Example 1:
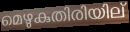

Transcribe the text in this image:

മെഴുകുതിരിയില്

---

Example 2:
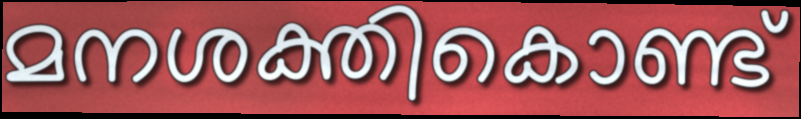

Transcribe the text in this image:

മനശക്തികൊണ്ട്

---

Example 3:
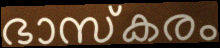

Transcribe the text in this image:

ഭാസ്കരം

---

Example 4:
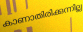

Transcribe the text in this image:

കാണാതിരിക്കുന്നില്ല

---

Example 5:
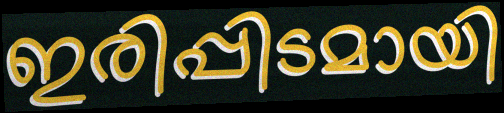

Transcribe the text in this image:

ഇരിപ്പിടമായി